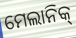
ମେଲାନିକ୍